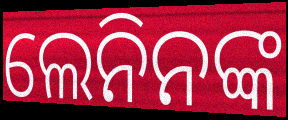
ଲେନିନଙ୍କ